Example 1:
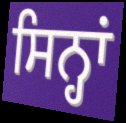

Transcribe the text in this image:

ਸਿਨ੍ਹਾਂ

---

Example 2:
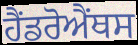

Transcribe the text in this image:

ਹੈਂਡਰੋਐਂਥਸ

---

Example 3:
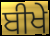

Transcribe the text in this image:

ਬੀਖੇ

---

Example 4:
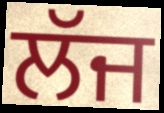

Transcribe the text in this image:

ਲੱਜ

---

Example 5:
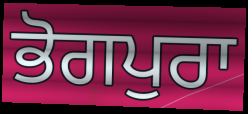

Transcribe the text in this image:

ਭੋਗਪੁਰਾ